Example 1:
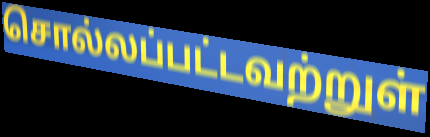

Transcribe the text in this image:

சொல்லப்பட்டவற்றுள்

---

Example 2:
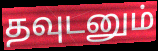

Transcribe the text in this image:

தவுடனும்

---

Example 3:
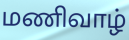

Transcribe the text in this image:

மணிவாழ்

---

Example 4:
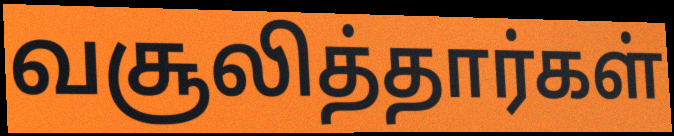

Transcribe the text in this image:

வசூலித்தார்கள்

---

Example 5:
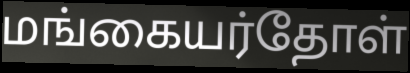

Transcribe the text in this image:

மங்கையர்தோள்